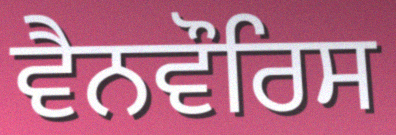
ਵੈਨਵੌਰਿਸ